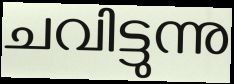
ചവിട്ടുന്നു